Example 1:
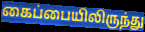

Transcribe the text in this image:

கைப்பையிலிருந்து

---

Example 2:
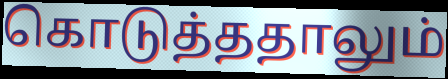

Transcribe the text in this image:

கொடுத்ததாலும்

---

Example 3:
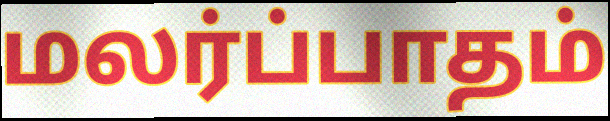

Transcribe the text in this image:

மலர்ப்பாதம்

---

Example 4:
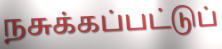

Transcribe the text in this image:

நசுக்கப்பட்டுப்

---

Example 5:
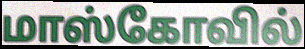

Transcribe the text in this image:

மாஸ்கோவில்